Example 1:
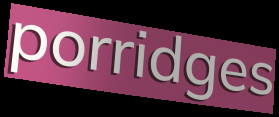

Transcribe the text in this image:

porridges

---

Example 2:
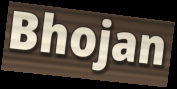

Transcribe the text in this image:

Bhojan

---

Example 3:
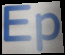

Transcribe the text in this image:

Ep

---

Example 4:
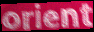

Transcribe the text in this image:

orient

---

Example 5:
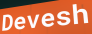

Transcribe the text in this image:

Devesh